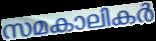
സമകാലികർ